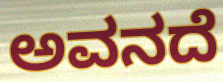
ಅವನದೆ